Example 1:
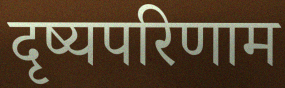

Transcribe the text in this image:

दृष्यपरिणाम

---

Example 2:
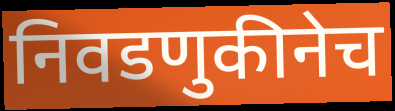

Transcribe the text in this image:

निवडणुकीनेच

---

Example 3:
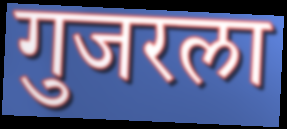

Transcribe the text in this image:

गुजरला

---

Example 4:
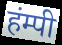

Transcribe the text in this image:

हंम्पी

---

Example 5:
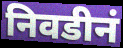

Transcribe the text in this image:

निवडीनं